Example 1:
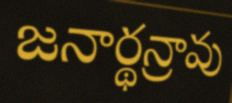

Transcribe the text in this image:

జనార్థన్రావు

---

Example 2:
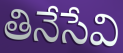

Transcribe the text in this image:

తినేసేవి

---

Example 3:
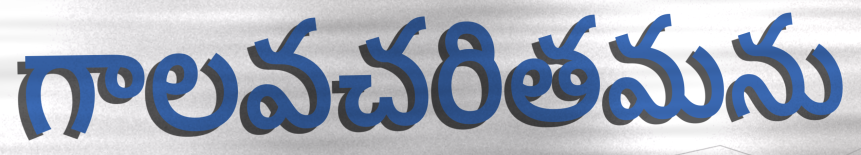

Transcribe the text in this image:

గాలవచరితమను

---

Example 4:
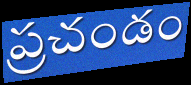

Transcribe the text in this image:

ప్రచండం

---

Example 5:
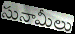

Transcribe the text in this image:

సునామీలు